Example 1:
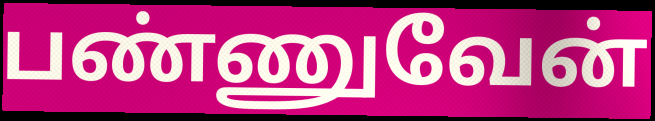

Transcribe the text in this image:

பண்ணுவேன்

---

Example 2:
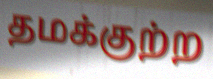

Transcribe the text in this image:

தமக்குற்ற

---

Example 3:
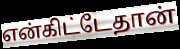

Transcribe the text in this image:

என்கிட்டேதான்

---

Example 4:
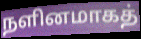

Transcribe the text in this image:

நளினமாகத்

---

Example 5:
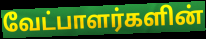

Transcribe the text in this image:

வேட்பாளர்களின்